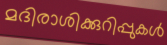
മദിരാശിക്കുറിപ്പുകൾ